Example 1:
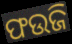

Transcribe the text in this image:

ଫଉଜି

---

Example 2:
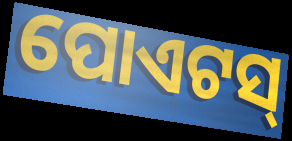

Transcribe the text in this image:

ପୋଏଟସ୍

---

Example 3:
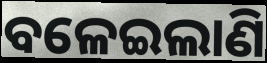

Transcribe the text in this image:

ବଳେଇଲାଣି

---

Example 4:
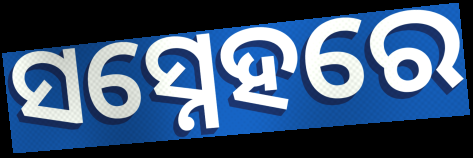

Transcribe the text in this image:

ସସ୍ନେହରେ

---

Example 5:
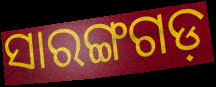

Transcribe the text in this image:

ସାରଙ୍ଗଗଡ଼